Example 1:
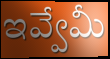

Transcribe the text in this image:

ఇవ్వేమీ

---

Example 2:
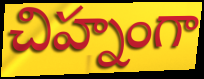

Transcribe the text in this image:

చిహ్నంగా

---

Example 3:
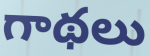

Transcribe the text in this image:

గాథలు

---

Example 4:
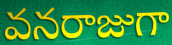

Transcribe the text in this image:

వనరాజుగా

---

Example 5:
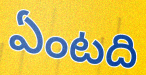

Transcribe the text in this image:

ఏంటది